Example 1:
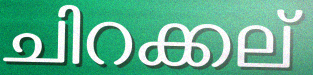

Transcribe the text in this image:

ചിറക്കല്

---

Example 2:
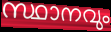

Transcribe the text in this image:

സ്ഥാനവും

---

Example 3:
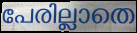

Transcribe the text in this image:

പേരില്ലാതെ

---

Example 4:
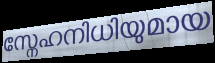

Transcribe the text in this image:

സ്നേഹനിധിയുമായ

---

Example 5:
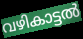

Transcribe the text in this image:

വഴികാട്ടൽ